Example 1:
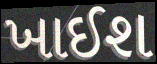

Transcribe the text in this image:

ખાઈશ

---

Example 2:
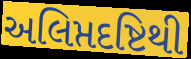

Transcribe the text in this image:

અલિપ્તદષ્ટિથી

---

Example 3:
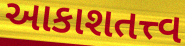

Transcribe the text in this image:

આકાશતત્ત્વ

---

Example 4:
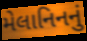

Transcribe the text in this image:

મેલાનિનનું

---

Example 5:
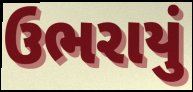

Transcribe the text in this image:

ઉભરાયું